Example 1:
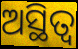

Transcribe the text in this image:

ଅସ୍ଥିତ୍ଵ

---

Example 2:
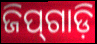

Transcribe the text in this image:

ଜିପ୍‍ଗାଡ଼ି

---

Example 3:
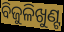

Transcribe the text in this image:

ବିଜୁଳିଖୁଣ୍ଟ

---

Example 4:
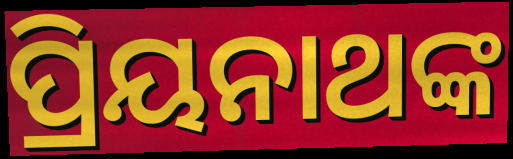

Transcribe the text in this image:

ପ୍ରିୟନାଥଙ୍କ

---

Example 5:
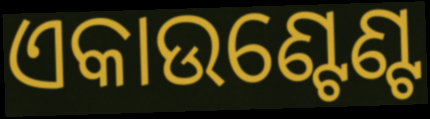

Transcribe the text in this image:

ଏକାଉଣ୍ଟେଣ୍ଟ